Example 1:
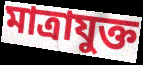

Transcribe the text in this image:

মাত্ৰাযুক্ত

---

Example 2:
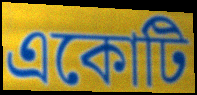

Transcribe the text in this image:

একোটি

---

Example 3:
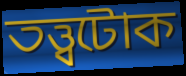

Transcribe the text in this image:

তত্ত্বটোক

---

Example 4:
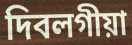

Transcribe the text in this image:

দিবলগীয়া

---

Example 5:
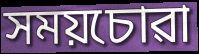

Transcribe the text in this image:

সময়চোৱা